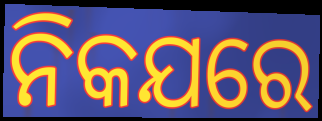
ନିକଯରେ